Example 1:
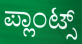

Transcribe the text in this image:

ಪ್ಲಾಂಟ್ಸ್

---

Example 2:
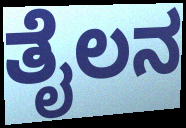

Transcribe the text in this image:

ತೈಲನ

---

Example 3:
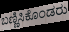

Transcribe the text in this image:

ಬಣ್ಣಿಸಿಕೊಂಡರು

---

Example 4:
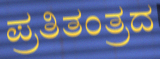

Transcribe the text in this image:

ಪ್ರತಿತಂತ್ರದ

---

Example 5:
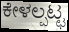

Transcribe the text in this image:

ಕೇಳಲ್ಪಟ್ಟ